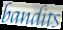
bandits